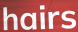
hairs